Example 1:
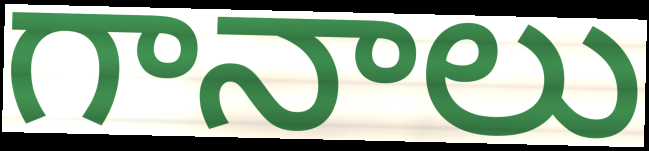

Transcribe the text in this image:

గానాలు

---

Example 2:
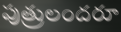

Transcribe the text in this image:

పుత్రులందరూ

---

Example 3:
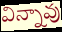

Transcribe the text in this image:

విన్నావు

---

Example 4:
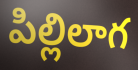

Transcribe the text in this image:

పిల్లిలాగ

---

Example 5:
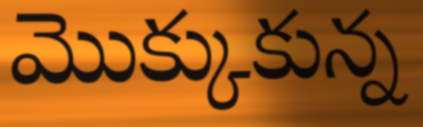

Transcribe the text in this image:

మొక్కుకున్న